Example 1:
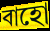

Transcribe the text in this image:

বাহো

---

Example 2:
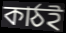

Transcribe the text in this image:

কাঠই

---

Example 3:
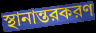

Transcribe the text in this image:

স্থানান্তরকরণ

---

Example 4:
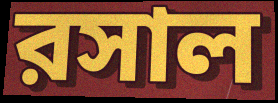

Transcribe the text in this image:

রসাল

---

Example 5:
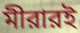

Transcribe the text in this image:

মীরারই